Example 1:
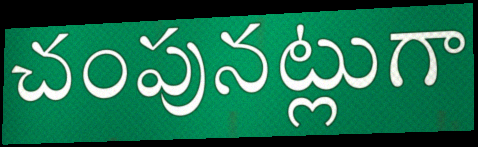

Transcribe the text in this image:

చంపునట్లుగా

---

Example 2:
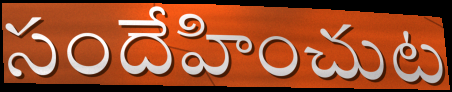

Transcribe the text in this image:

సందేహించుట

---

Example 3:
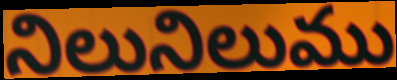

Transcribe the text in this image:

నిలునిలుము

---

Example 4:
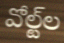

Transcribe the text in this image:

వోల్ట్‌ల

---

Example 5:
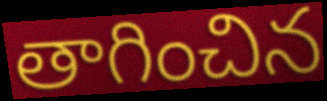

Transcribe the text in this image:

తాగించిన